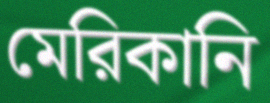
মেরিকানি